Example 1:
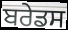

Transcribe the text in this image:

ਬਰੇਡਸ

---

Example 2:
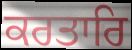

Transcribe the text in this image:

ਕਰਤਾਰਿ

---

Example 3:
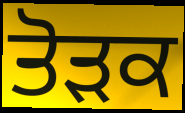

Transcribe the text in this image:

ਤੋੜਕ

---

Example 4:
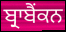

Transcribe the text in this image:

ਬ੍ਰਾਬੈਂਕਨ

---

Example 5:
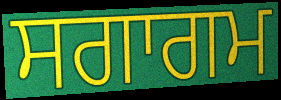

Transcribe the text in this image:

ਸਗਾਗਮ